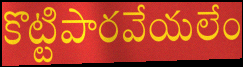
కొట్టిపారవేయలేం